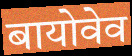
बायोवेव